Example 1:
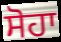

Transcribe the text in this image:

ਸੋਹਾ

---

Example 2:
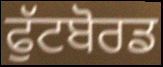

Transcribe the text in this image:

ਫੁੱਟਬੋਰਡ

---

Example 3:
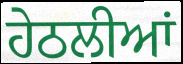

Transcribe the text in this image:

ਹੇਠਲੀਆਂ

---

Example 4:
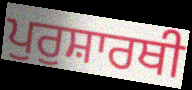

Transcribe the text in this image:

ਪੁਰੁਸ਼ਾਰਥੀ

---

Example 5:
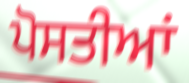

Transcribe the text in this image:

ਪੋਸਤੀਆਂ